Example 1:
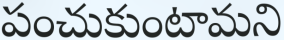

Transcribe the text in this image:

పంచుకుంటామని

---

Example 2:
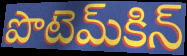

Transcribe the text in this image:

పొటెమ్‌కిన్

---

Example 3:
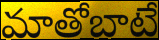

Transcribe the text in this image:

మాతోబాటే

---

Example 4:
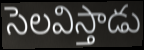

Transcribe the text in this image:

సెలవిస్తాడు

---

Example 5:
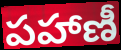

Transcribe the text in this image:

పహాణీ